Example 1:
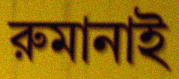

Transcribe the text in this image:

রুমানাই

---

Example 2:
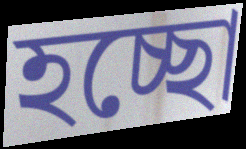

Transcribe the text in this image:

হচ্ছো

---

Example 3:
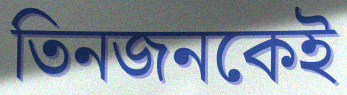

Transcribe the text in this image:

তিনজনকেই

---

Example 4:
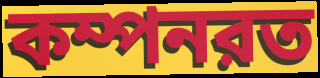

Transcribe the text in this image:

কম্পনরত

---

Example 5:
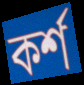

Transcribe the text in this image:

কর্শ